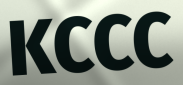
KCCC